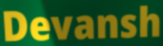
Devansh